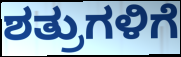
ಶತ್ರುಗಳಿಗೆ